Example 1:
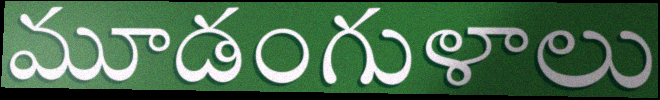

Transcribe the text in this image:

మూడంగుళాలు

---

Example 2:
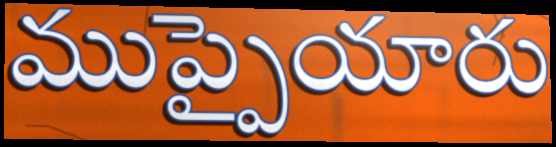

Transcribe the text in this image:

ముప్పైయారు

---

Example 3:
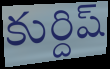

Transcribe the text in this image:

కుర్దిష్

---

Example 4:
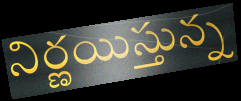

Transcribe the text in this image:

నిర్ణయిస్తున్న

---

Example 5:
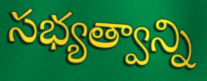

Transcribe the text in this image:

సభ్యత్వాన్ని